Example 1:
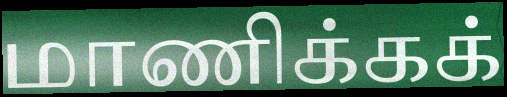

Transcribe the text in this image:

மாணிக்கக்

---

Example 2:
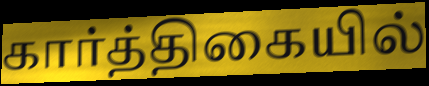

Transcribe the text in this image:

கார்த்திகையில்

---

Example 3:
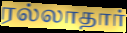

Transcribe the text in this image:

ரல்லாதார்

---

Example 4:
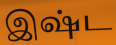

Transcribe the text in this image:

இஷ்ட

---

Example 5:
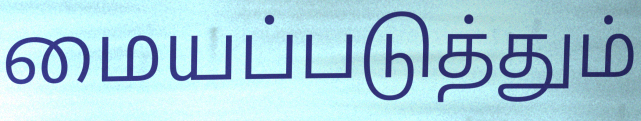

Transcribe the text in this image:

மையப்படுத்தும்